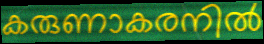
കരുണാകരനിൽ